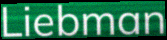
Liebman